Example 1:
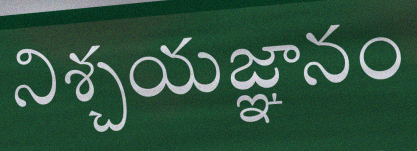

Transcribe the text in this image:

నిశ్చయజ్ఞానం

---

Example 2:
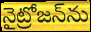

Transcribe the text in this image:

నైట్రోజన్‌ను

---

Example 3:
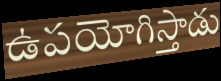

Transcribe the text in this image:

ఉపయోగిస్తాడు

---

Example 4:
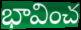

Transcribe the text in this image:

భావించ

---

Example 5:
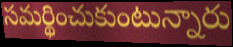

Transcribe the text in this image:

సమర్థించుకుంటున్నారు